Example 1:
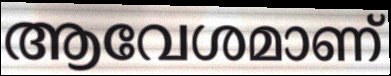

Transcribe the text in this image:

ആവേശമാണ്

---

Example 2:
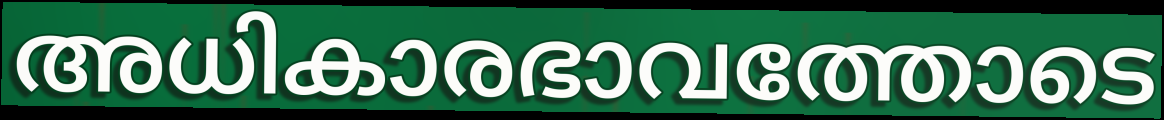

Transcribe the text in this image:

അധികാരഭാവത്തോടെ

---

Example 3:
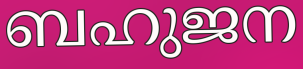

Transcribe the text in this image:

ബഹുജന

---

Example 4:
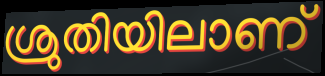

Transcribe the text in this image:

ശ്രുതിയിലാണ്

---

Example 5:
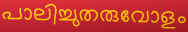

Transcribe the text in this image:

പാലിച്ചുതരുവോളം